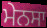
ਮੇਨਸਾ